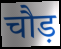
चौड़